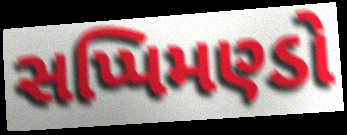
સપ્પિમણ્ડો